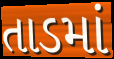
તાડમાં